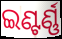
ଇଣ୍ଟର୍ଣ୍ଣ